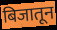
बिजातून